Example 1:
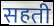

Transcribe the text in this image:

सहती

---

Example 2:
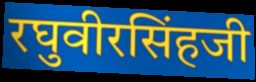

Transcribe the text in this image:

रघुवीरसिंहजी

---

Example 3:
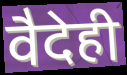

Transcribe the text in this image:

वैदेही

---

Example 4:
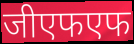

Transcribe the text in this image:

जीएफएफ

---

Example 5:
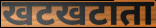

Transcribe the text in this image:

खटखटाता